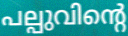
പല്പുവിന്റെ